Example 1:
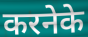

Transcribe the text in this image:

करनेके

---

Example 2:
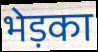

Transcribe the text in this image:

भेड़का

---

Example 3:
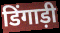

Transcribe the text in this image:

डिंगाड़ी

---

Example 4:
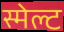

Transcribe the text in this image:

स्मेल्ट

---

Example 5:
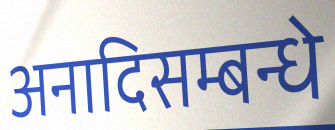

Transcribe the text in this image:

अनादिसम्बन्धे